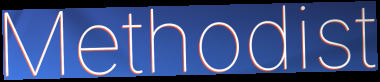
Methodist